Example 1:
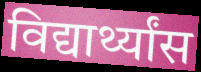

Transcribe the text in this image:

विद्यार्थ्यांस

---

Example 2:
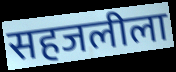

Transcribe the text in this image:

सहजलीला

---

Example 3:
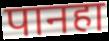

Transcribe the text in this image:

पानहा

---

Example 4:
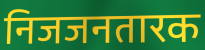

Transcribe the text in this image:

निजजनतारक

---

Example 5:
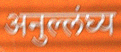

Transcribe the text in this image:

अनुल्लंघ्य